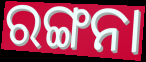
ରଙ୍ଗନା